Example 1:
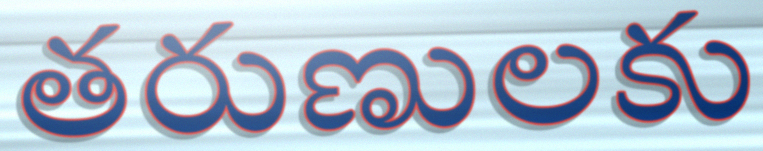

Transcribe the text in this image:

తరుణులకు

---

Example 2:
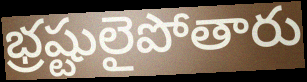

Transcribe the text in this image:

భ్రష్టులైపోతారు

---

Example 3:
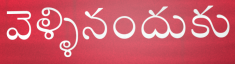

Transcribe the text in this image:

వెళ్ళినందుకు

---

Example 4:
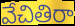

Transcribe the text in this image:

వేచితిరా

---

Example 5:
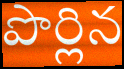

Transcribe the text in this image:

పొర్లిన